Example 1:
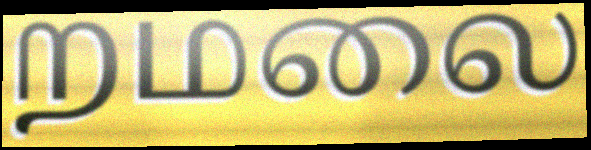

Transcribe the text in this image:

றமலை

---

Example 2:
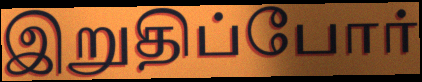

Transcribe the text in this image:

இறுதிப்போர்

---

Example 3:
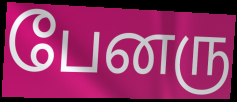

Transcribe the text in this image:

பேனரு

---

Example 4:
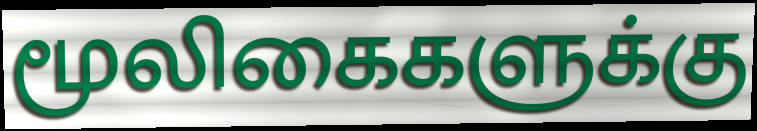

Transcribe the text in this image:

மூலிகைகளுக்கு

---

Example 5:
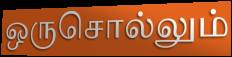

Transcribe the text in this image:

ஒருசொல்லும்